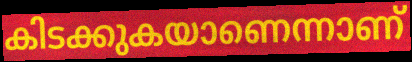
കിടക്കുകയാണെന്നാണ്